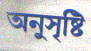
অনুসৃষ্টি